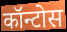
कॉन्टोस